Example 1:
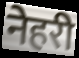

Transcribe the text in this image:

नेहरी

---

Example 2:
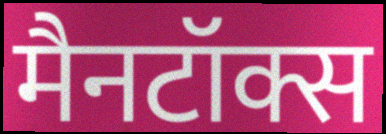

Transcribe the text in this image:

मैनटॉक्स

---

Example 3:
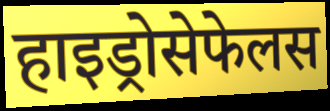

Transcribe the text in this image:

हाइड्रोसेफेलस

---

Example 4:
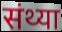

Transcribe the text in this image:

संथ्या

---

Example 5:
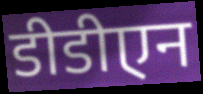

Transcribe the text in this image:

डीडीएन